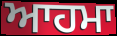
ਆਹਮਾ